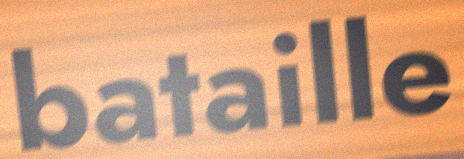
bataille